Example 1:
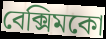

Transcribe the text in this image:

বেক্সিমকো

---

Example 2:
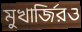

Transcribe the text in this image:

মুখার্জিরও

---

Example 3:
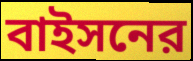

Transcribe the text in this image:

বাইসনের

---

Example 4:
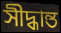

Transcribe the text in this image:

সীদ্ধান্ত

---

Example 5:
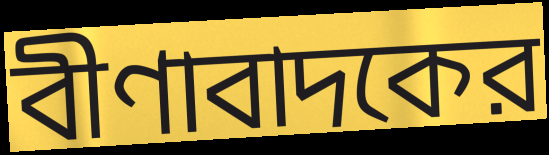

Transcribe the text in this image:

বীণাবাদকের